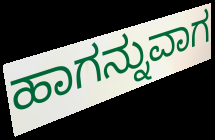
ಹಾಗನ್ನುವಾಗ